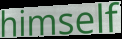
himself